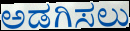
ಅಡಗಿಸಲು